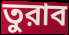
তুরাব